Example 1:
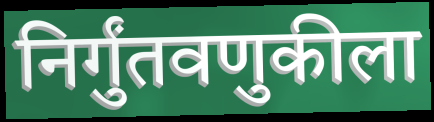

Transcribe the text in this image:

निर्गुंतवणुकीला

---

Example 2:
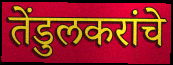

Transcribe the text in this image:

तेंडुलकरांचे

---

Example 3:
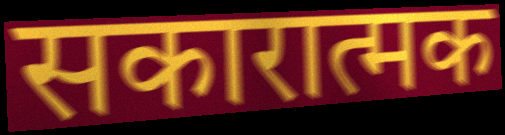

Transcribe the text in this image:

सकारात्‍मक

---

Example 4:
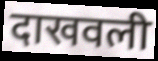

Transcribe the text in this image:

दाखवली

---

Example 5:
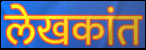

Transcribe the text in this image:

लेखकांत